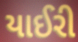
યાઈરી